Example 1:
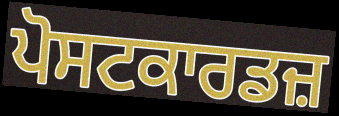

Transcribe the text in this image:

ਪੋਸਟਕਾਰਡਜ਼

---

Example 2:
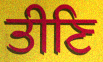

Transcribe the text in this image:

ਤੀਣਿ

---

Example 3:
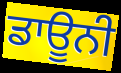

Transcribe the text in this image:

ਡਾਊਨੀ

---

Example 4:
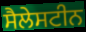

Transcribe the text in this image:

ਸੈਲੇਸਟੀਨ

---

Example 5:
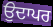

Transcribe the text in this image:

ਉਦਾਪਰ